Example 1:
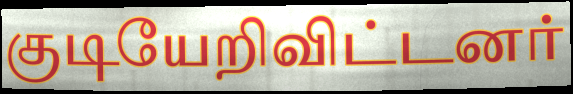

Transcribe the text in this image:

குடியேறிவிட்டனர்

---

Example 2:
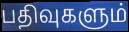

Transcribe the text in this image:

பதிவுகளும்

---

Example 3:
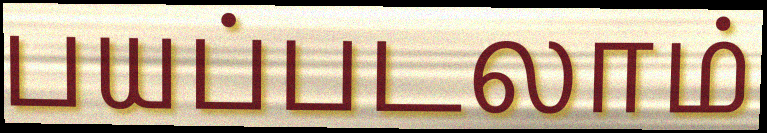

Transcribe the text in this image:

பயப்படலாம்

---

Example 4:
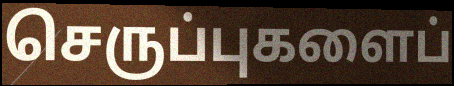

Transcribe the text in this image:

செருப்புகளைப்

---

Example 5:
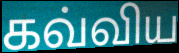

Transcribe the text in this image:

கவ்விய